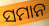
ସମାନ